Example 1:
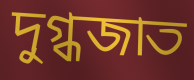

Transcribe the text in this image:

দুগ্ধজাত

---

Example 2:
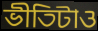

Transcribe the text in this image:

ভীতিটাও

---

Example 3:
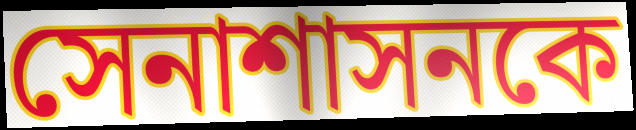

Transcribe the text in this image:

সেনাশাসনকে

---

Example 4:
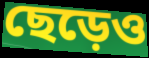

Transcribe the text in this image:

ছেড়েও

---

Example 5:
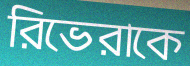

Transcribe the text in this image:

রিভেরাকে